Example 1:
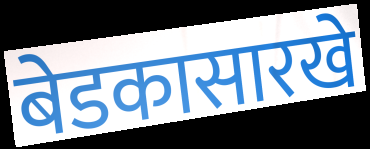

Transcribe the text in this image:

बेडकासारखे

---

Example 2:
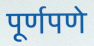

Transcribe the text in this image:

पूर्णपणे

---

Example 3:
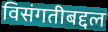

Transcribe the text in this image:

विसंगतीबद्दल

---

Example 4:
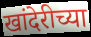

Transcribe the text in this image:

खांदेरीच्या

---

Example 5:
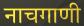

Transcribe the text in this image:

नाचगाणी